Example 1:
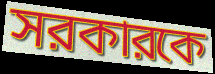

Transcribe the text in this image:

সরকারকে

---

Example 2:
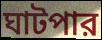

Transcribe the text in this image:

ঘাটপার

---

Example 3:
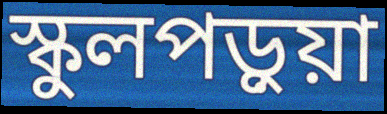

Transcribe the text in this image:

স্কুলপড়ুয়া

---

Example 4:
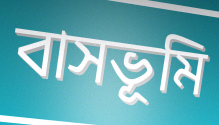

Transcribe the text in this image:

বাসভূমি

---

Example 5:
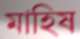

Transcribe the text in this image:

মাহিষ